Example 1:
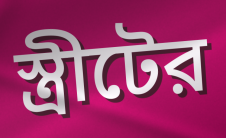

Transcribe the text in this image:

স্ত্রীটের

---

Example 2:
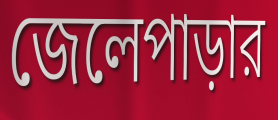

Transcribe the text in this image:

জেলেপাড়ার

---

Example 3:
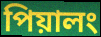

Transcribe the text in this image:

পিয়ালং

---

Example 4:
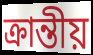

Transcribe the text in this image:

ক্রান্তীয়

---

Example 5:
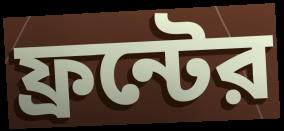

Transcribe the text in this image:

ফ্রন্টের